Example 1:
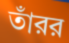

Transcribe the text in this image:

তাঁরর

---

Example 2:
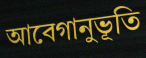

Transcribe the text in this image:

আবেগানুভূতি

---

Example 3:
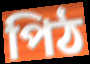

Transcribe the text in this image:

পিঠ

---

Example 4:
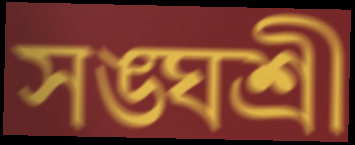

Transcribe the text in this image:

সঙ্ঘশ্রী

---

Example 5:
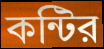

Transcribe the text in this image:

কন্টির